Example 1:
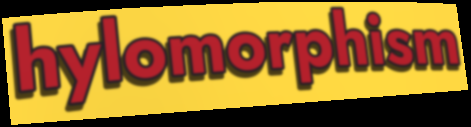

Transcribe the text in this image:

hylomorphism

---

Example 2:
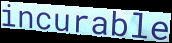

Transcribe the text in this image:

incurable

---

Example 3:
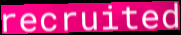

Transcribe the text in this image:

recruited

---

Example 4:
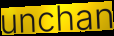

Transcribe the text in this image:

unchan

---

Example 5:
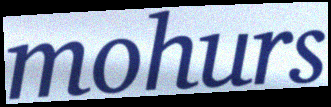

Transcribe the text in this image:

mohurs